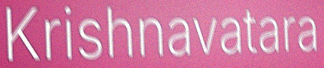
Krishnavatara